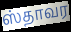
ஸ்தாவர